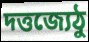
দত্তজ্যেঠু